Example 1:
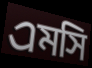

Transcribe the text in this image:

এমসি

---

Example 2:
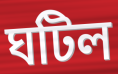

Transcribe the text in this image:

ঘটিল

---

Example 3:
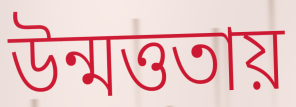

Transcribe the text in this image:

উন্মত্ততায়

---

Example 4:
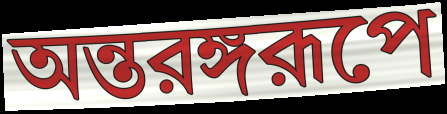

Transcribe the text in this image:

অন্তরঙ্গরূপে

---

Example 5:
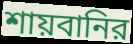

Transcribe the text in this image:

শায়বানির